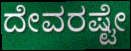
ದೇವರಷ್ಟೇ